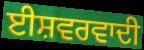
ਈਸ਼ਵਰਵਾਦੀ